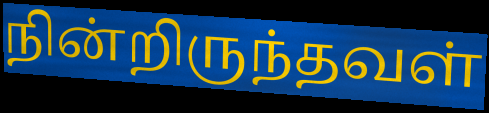
நின்றிருந்தவள்